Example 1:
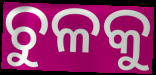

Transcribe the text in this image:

ଚୁଳକୁ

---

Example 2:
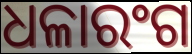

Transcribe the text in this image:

ଧଳାରଂଗ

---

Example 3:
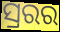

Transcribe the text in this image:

ସ୍ରରର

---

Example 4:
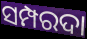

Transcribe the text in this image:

ସମ୍ପରଦା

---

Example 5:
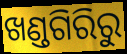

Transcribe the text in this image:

ଖଣ୍ଡଗିରିରୁ